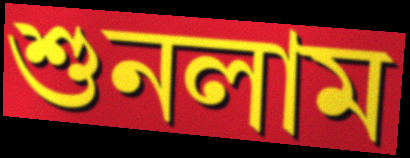
শুনলাম